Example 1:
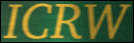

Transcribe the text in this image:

ICRW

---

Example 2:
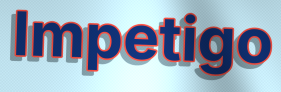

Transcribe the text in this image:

Impetigo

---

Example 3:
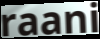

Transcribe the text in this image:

raani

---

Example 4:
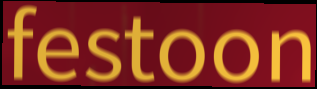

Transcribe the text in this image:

festoon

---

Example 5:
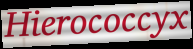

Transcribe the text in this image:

Hierococcyx